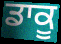
ਡਾਕੂ